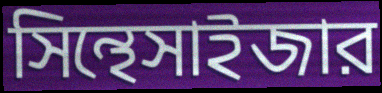
সিন্থেসাইজার